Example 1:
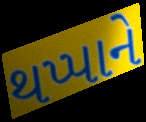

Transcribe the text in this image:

થપ્પાને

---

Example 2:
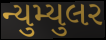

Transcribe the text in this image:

ન્યુમ્યુલર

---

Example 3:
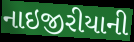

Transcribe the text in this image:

નાઇજીરીયાની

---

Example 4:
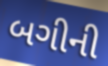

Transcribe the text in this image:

બગીની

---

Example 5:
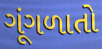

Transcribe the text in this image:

ગૂંગળાતો